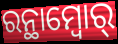
ରନ୍ଥାମ୍ବୋର୍